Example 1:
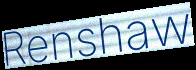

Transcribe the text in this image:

Renshaw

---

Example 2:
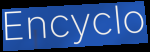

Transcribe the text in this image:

Encyclo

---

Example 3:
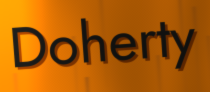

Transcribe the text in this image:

Doherty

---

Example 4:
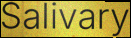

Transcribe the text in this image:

Salivary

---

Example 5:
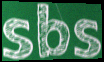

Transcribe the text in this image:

sbs